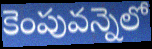
కెంపువన్నెలో